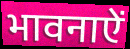
भावनाऐं